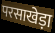
परसाखेड़ा